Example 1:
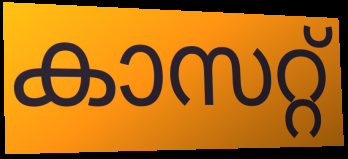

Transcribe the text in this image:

കാസറ്റ്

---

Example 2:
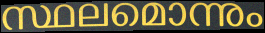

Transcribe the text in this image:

സ്ഥലമൊന്നും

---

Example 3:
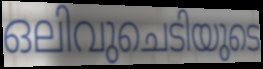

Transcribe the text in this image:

ഒലിവുചെടിയുടെ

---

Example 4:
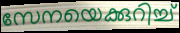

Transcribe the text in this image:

സേനയെക്കുറിച്ച്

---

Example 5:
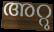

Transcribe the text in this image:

അറ്റു